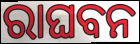
ରାଘବନ